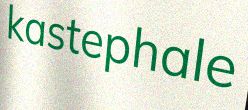
kastephale